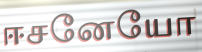
ஈசனேயோ